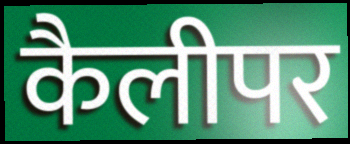
कैलीपर